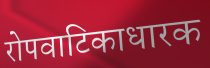
रोपवाटिकाधारक